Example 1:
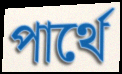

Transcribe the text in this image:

পার্থে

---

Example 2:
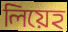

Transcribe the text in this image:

লিয়েহ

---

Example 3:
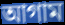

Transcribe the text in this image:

আগাম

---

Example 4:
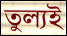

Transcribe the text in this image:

তুল্যই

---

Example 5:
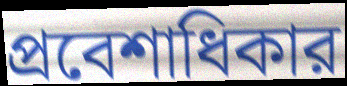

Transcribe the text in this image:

প্রবেশাধিকার